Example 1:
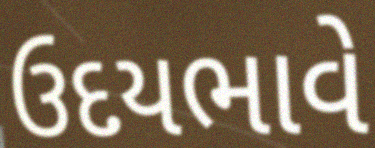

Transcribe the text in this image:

ઉદયભાવે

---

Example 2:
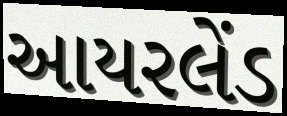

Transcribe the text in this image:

આયરલેંડ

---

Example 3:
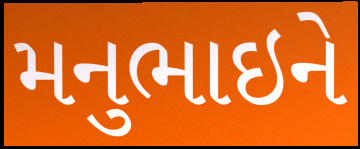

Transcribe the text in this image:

મનુભાઇને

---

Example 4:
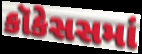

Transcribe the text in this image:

કૉકેસસમાં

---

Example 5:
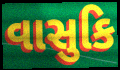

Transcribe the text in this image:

વાસુકિ